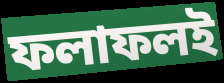
ফলাফলই